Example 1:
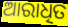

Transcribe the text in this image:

ଆରାଧିତ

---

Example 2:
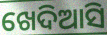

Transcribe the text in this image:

ଖେଦିଆସି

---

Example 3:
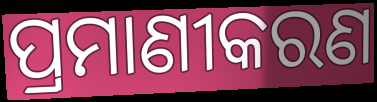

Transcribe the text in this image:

ପ୍ରମାଣୀକରଣ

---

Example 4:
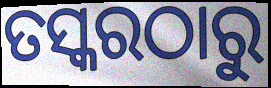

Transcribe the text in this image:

ତସ୍କରଠାରୁ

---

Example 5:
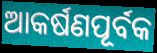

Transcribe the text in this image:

ଆକର୍ଷଣପୂର୍ବକ